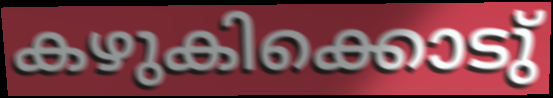
കഴുകിക്കൊടു്